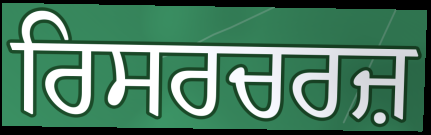
ਰਿਸਰਚਰਜ਼